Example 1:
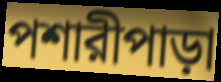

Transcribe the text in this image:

পশারীপাড়া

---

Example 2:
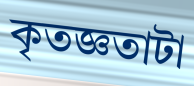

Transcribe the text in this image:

কৃতজ্ঞতাটা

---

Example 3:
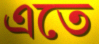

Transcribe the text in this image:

এতে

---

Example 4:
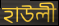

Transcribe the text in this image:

হাউলী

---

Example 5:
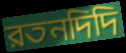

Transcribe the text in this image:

রতনদিদি